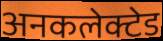
अनकलेक्टेड